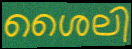
ശൈലി